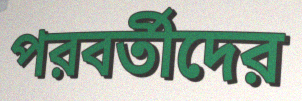
পরবর্তীদের